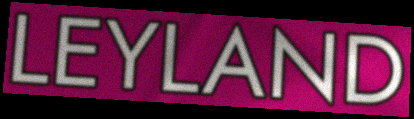
LEYLAND